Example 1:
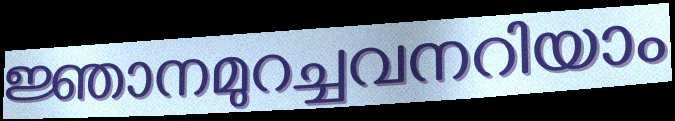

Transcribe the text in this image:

ജ്ഞാനമുറച്ചവനറിയാം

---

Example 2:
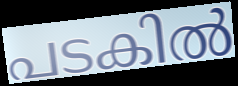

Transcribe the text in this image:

പടകിൽ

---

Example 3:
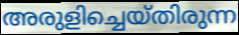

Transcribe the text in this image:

അരുളിച്ചെയ്തിരുന്ന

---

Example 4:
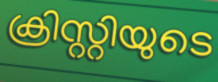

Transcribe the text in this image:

ക്രിസ്റ്റിയുടെ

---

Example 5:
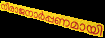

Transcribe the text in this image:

നീരാജനാർപ്പണമായി